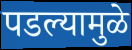
पडल्यामुळे